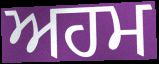
ਅਹਮ